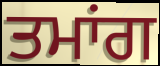
ਤਮਾਂਗ